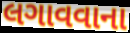
લગાવવાના